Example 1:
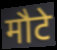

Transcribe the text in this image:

मौटे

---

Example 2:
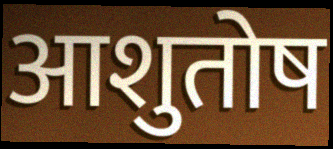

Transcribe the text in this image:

आशुतोष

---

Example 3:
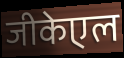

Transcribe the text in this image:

जीकेएल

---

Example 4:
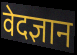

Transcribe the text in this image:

वेदज्ञान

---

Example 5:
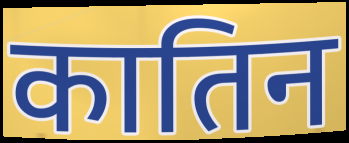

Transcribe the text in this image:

कातिन